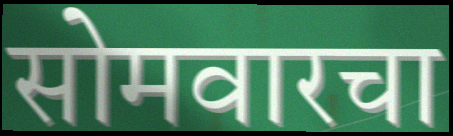
सोमवारचा